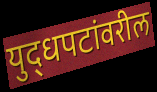
युद्धपटांवरील